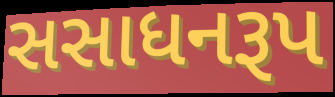
સસાધનરૂપ